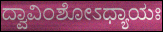
ದ್ವಾವಿಂಶೋಽಧ್ಯಾಯಃ